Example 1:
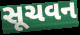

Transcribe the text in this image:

સૂચવન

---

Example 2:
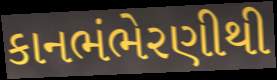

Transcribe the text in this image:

કાનભંભેરણીથી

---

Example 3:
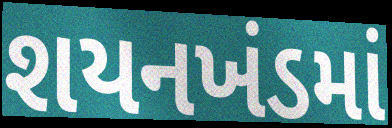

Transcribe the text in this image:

શયનખંડમાં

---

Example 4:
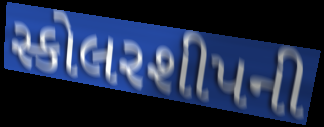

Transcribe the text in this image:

સ્કોલરશીપની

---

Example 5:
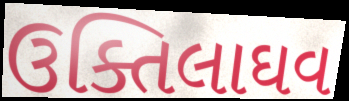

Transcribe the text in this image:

ઉક્તિલાઘવ